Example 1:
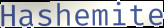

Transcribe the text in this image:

Hashemite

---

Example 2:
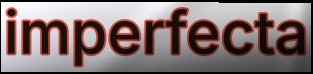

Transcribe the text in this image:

imperfecta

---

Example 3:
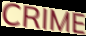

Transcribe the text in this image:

CRIME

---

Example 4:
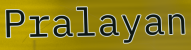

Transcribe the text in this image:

Pralayan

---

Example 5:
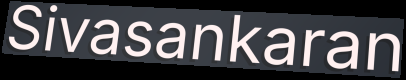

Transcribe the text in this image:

Sivasankaran